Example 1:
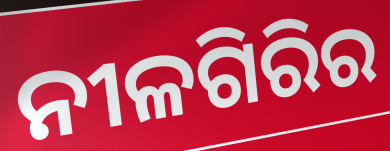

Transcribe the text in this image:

ନୀଳଗିରିର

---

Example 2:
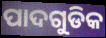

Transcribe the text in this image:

ପାଦଗୁଡିକ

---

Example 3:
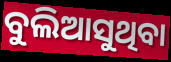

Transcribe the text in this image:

ବୁଲିଆସୁଥିବା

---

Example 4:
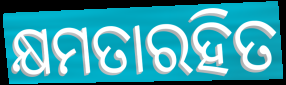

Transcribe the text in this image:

କ୍ଷମତାରହିତ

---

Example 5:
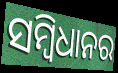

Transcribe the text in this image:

ସମ୍ବିଧାନର